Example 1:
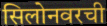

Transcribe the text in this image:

सिलोनवरची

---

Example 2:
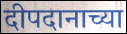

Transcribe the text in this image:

दीपदानाच्या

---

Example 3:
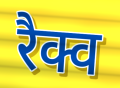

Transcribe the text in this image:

रैक्व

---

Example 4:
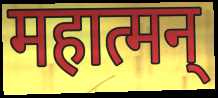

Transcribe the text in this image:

महात्मन्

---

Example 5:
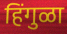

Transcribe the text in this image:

हिंगुळा